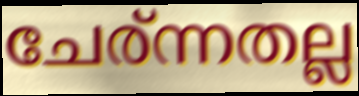
ചേര്ന്നതല്ല